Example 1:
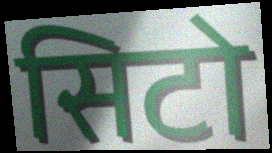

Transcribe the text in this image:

सिटो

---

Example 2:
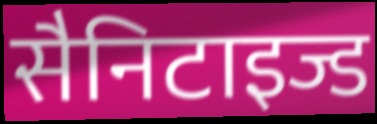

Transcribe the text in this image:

सैनिटाइज्ड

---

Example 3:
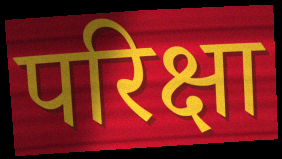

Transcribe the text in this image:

परिक्षा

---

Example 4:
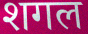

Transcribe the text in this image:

शगल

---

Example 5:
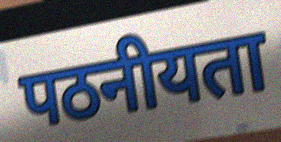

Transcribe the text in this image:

पठनीयता